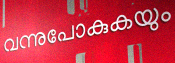
വന്നുപോകുകയും